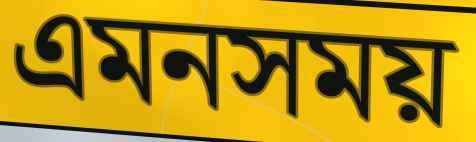
এমনসময়